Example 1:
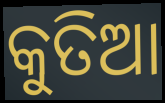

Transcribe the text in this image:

କୁତିଆ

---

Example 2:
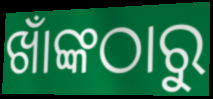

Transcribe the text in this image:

ଖାଁଙ୍କଠାରୁ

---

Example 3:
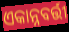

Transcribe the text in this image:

ଏକାନ୍ନବର୍ତ୍ତୀ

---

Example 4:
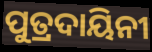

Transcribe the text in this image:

ପୁତ୍ରଦାୟିନୀ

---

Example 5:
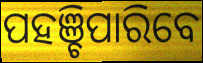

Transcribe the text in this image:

ପହଞ୍ଚିପାରିବେ